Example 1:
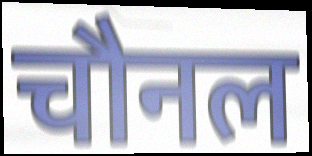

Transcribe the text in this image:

चौनल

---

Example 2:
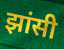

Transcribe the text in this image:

झांसी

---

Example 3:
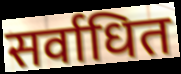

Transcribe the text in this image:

सर्वाधित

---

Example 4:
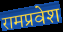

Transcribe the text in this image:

रामप्रवेश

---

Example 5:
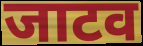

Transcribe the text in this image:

जाटव